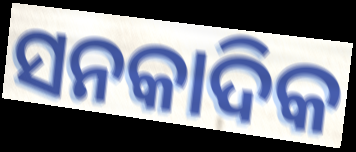
ସନକାଦିକ